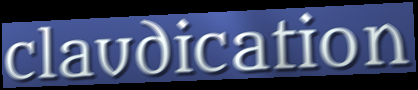
claudication